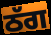
ਠੱਗ